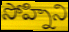
సోహ్నిని